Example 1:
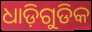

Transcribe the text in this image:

ଧାଡ଼ିଗୁଡିକ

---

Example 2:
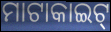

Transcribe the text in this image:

ମାଟାକାଇଟ୍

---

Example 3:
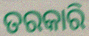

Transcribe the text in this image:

ତରକାରି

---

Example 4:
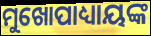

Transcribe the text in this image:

ମୁଖୋପାଧ୍ୟାୟଙ୍କ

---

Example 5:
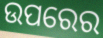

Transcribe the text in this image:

ଉପରେର